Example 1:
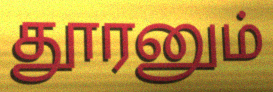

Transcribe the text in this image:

தூரனும்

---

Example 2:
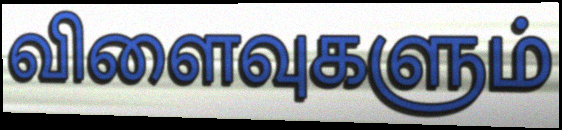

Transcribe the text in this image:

விளைவுகளும்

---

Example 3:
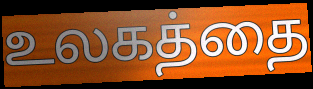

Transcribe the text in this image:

உலகத்தை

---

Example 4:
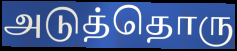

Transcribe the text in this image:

அடுத்தொரு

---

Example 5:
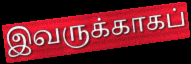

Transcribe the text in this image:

இவருக்காகப்